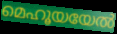
മെഹൂയയേൽ